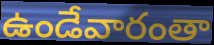
ఉండేవారంతా